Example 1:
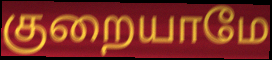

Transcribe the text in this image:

குறையாமே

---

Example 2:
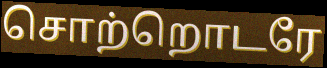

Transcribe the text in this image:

சொற்றொடரே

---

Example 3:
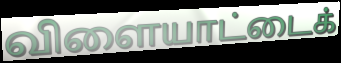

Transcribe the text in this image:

விளையாட்டைக்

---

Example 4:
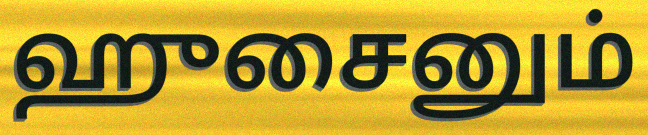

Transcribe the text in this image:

ஹுசைனும்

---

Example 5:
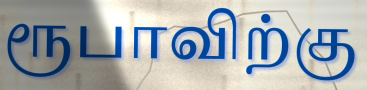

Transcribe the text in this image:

ரூபாவிற்கு